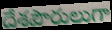
దేశపౌరులుగా